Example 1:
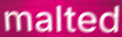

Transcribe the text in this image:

malted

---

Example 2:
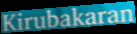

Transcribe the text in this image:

Kirubakaran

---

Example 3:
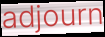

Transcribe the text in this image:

adjourn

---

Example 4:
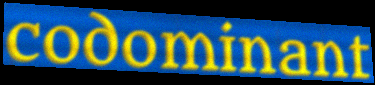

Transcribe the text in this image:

codominant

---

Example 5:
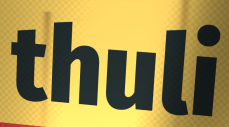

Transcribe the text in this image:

thuli